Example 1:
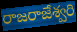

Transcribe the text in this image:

రాజరాజేశ్వరి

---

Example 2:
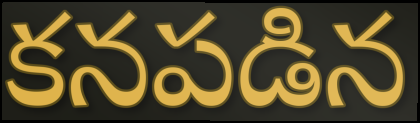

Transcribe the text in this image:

కనపడిన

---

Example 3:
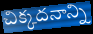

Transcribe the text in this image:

చిక్కదనాన్ని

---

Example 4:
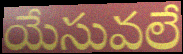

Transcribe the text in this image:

యేసువలే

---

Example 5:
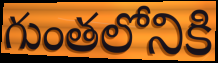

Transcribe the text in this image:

గుంతలోనికి